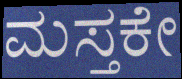
ಮಸ್ತಕೇ